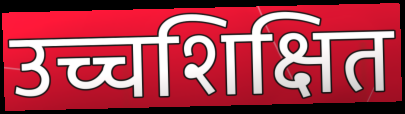
उच्चशिक्षित